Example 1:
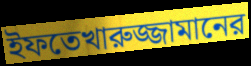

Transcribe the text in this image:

ইফতেখারুজ্জামানের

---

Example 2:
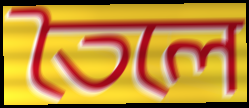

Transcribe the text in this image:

তৈলে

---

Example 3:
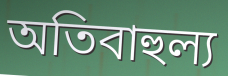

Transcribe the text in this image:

অতিবাহুল্য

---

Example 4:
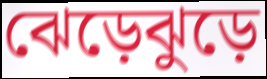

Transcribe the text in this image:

ঝেড়েঝুড়ে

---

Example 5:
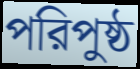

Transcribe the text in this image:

পরিপুষ্ঠ